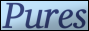
Pures